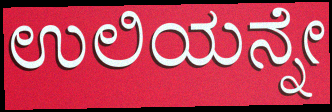
ಉಲಿಯನ್ನೇ